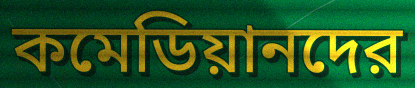
কমেডিয়ানদের